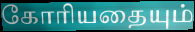
கோரியதையும்